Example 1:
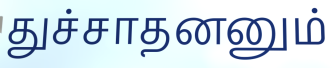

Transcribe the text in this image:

துச்சாதனனும்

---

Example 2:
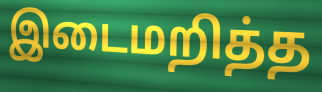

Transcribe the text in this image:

இடைமறித்த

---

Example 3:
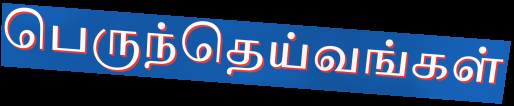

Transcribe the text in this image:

பெருந்தெய்வங்கள்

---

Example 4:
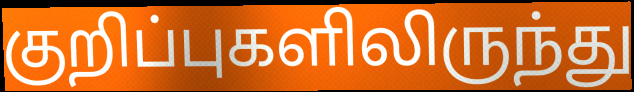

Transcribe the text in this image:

குறிப்புகளிலிருந்து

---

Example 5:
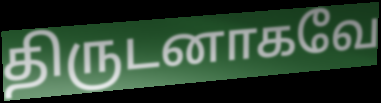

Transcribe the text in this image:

திருடனாகவே